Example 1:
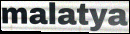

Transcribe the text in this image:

malatya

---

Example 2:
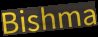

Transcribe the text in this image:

Bishma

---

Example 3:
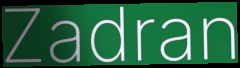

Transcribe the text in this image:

Zadran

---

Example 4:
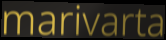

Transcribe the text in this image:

marivarta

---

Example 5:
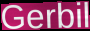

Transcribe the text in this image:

Gerbil